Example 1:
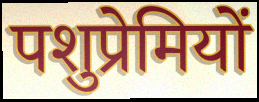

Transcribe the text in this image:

पशुप्रेमियों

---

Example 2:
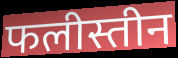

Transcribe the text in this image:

फलीस्तीन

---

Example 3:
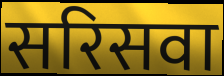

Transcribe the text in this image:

सरिसवा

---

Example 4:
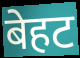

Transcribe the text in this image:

बेहट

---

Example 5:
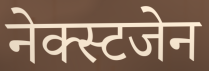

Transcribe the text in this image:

नेक्स्टजेन